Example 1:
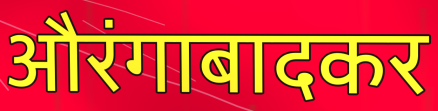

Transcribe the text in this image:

औरंगाबादकर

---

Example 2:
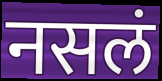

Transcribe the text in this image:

नसलं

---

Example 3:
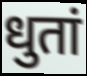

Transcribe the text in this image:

धुतां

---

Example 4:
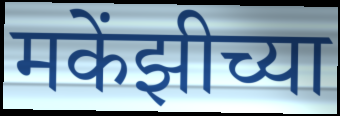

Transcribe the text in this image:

मकेंझीच्या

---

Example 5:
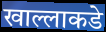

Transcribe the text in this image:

खाल्लाकडे